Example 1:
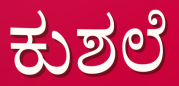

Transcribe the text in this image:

ಕುಶಲೆ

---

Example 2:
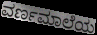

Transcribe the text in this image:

ವರ್ಣಮಾಲೆಯ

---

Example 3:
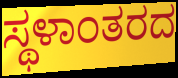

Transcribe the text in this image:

ಸ್ಥಳಾಂತರದ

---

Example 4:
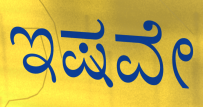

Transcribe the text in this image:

ಇಷವೇ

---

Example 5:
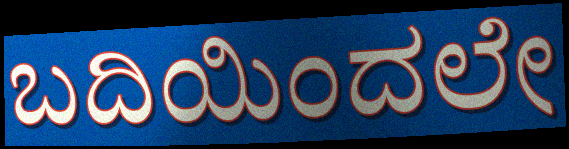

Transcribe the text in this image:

ಬದಿಯಿಂದಲೇ